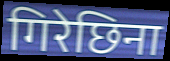
गिरेछिना